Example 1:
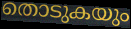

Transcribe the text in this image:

തൊടുകയും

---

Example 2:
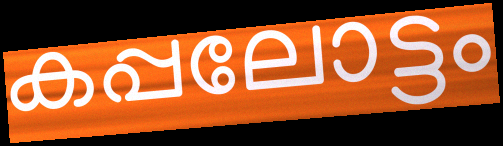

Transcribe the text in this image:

കപ്പലോട്ടം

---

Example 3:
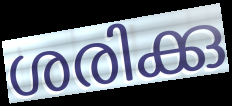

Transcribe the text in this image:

ശരിക്കു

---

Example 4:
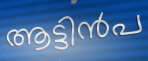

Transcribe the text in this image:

ആട്ടിൻപ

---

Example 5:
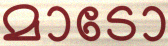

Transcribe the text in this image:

മാടോ